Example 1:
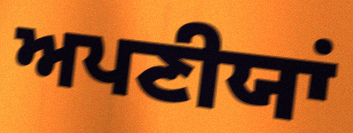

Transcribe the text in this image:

ਅਪਣੀਯਾਂ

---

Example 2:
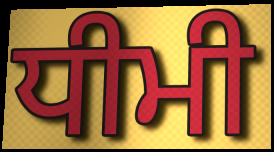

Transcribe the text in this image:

ਧੀਮੀ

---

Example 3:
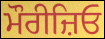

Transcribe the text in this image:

ਮੌਰੀਜ਼ਿਓ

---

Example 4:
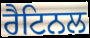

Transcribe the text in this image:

ਰੈਟਿਨਲ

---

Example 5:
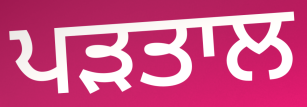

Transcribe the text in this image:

ਪੜਤਾਲ